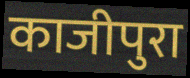
काजीपुरा